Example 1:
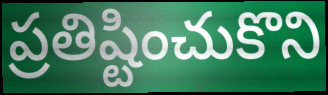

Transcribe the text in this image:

ప్రతిష్టించుకొని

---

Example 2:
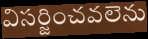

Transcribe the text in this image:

విసర్జించవలెను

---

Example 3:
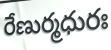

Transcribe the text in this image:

రేణుర్మధురః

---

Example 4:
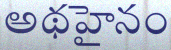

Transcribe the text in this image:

అథహైనం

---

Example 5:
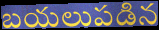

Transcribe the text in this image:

బయలుపడిన